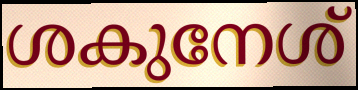
ശകുനേശ്